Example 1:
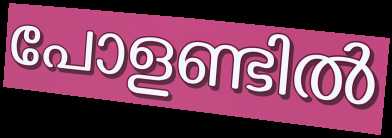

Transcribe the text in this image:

പോളണ്ടിൽ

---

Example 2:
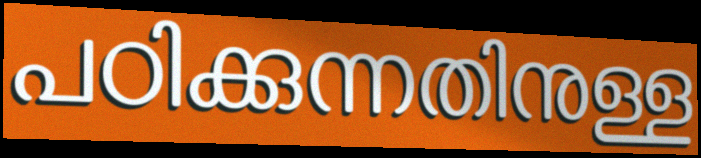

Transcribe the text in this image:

പഠിക്കുന്നതിനുള്ള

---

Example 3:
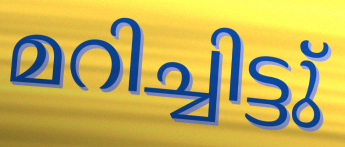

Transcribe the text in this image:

മറിച്ചിട്ടു്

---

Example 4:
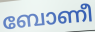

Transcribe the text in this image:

ബോണീ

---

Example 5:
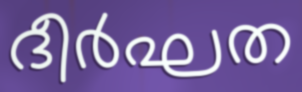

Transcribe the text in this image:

ദീർഘത